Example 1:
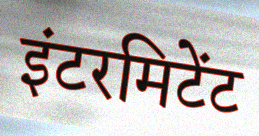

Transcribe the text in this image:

इंटरमिटेंट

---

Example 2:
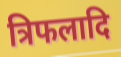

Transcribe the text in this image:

त्रिफलादि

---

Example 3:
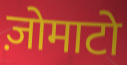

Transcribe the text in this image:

ज़ोमाटो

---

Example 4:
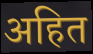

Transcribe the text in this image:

अहित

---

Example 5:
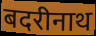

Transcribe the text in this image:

बदरीनाथ